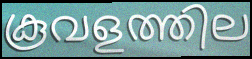
കൂവളത്തില